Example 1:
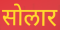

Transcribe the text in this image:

सोलार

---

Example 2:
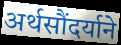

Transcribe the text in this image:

अर्थसौंदर्याने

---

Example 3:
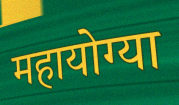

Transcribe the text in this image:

महायोग्या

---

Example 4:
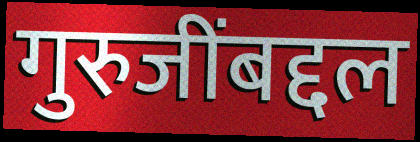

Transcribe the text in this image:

गुरुजींबद्दल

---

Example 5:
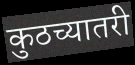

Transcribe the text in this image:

कुठच्यातरी